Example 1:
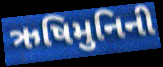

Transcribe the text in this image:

ઋષિમુનિની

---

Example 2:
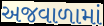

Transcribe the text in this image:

અજવાળામાં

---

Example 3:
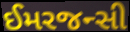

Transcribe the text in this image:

ઈમરજન્સી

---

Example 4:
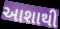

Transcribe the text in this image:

આશાથી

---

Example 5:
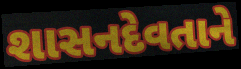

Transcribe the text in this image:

શાસનદેવતાને